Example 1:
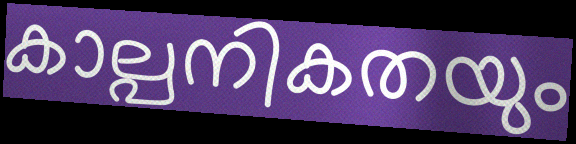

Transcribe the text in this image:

കാല്പനികതയും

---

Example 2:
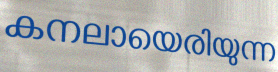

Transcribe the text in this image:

കനലായെരിയുന്ന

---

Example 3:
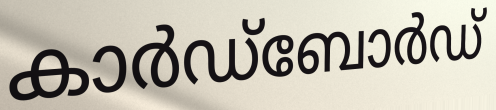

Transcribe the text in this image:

കാർഡ്ബോർഡ്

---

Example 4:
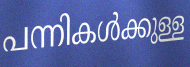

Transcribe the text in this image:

പന്നികൾക്കുള്ള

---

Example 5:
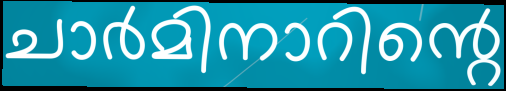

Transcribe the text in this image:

ചാർമിനാറിന്റെ